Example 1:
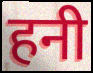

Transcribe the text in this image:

हनी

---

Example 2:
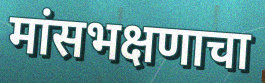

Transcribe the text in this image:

मांसभक्षणाचा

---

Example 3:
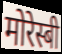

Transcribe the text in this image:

मोरेस्बी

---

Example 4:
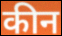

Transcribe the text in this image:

कीन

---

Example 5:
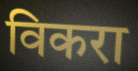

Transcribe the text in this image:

विकरा